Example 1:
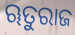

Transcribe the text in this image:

ୠତୁରାଜ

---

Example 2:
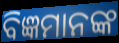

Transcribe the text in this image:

ବିଜ୍ଞମାନଙ୍କ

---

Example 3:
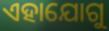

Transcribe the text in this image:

ଏହାଯୋଗୁ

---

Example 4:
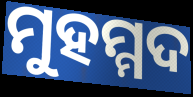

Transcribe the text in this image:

ମୁହମ୍ମଦ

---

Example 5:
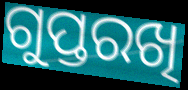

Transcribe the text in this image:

ଗୁପ୍ତରଖି